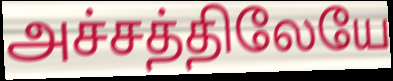
அச்சத்திலேயே